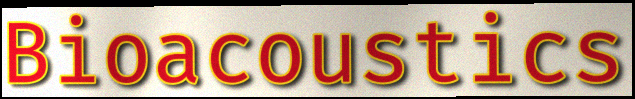
Bioacoustics